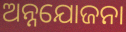
ଅନ୍ନଯୋଜନା